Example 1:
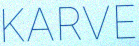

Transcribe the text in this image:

KARVE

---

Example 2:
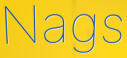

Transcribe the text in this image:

Nags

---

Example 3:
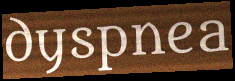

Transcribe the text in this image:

dyspnea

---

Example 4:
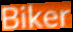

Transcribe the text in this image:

Biker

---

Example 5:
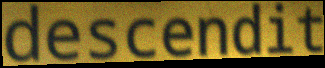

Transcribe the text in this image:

descendit